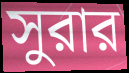
সুরার